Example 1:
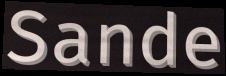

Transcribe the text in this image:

Sande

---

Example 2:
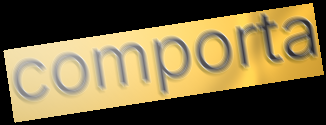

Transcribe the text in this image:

comporta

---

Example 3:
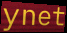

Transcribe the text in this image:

ynet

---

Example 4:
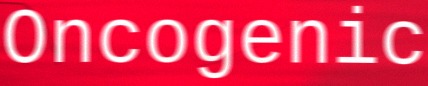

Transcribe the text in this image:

Oncogenic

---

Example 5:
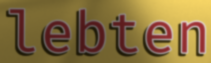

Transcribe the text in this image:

lebten